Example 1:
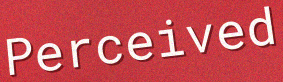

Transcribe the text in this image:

Perceived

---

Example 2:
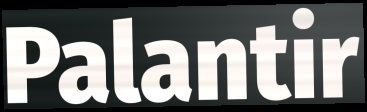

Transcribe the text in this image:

Palantir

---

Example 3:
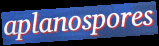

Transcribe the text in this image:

aplanospores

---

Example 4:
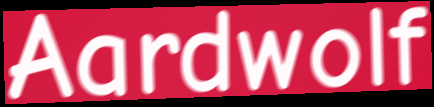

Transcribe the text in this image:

Aardwolf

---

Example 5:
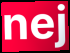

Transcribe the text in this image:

nej